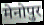
मेनोपुर